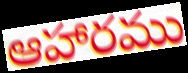
ఆహారము